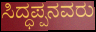
ಸಿದ್ಧಪ್ಪನವರು